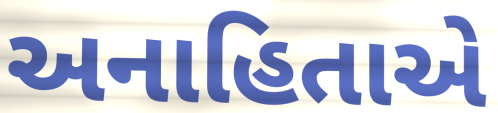
અનાહિતાએ